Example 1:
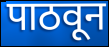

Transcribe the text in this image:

पाठवून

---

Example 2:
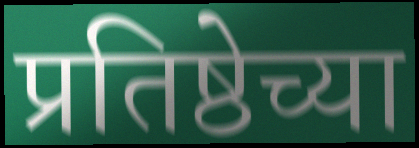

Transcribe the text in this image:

प्रतिष्ठेच्या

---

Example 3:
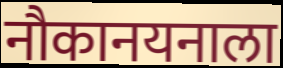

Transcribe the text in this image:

नौकानयनाला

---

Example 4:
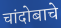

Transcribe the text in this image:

चांदोबाचे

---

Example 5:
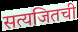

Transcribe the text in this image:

सत्यजितची